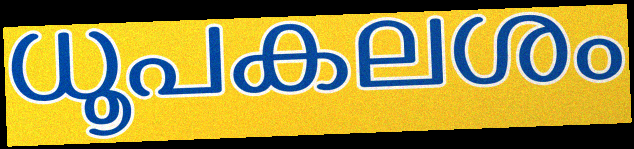
ധൂപകലശം